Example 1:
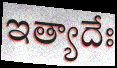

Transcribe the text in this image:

ఇత్యాదేః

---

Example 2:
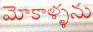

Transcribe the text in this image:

మోకాళ్ళను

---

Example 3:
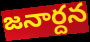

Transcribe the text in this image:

జనార్దన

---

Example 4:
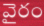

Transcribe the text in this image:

వైరం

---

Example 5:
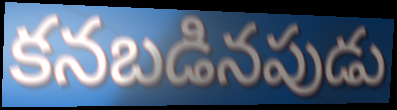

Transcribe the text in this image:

కనబడినపుడు